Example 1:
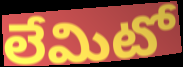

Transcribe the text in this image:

లేమిటో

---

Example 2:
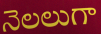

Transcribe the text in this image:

నెలలుగా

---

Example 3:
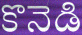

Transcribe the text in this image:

కొనెడి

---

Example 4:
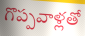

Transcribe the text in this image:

గొప్పవాళ్లతో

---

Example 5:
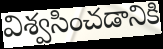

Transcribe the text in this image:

విశ్వసించడానికి